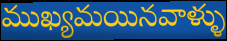
ముఖ్యమయినవాళ్ళు